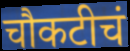
चौकटीचं